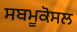
ਸਬਮੂਕੋਸਲ